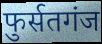
फुर्सतगंज